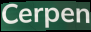
Cerpen